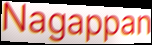
Nagappan